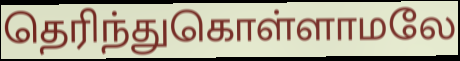
தெரிந்துகொள்ளாமலே